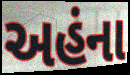
અહંના